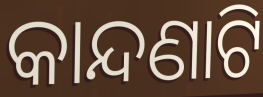
କାନ୍ଦଣାଟି